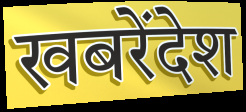
खबरेंदेश